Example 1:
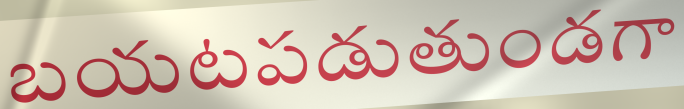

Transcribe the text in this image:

బయటపడుతుండగా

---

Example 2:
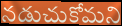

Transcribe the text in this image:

నడుచుకోమని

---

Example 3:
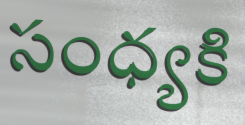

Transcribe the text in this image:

సంధ్యకి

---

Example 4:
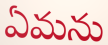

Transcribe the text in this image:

ఏమను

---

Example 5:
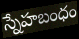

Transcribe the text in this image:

స్నేహబంధం